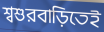
শ্বশুরবাড়িতেই